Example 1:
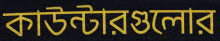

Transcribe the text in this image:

কাউন্টারগুলোর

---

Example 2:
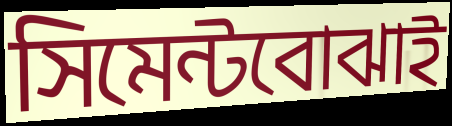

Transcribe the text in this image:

সিমেন্টবোঝাই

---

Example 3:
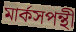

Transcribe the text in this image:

মার্কসপন্থী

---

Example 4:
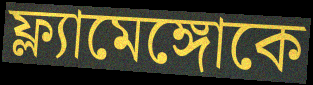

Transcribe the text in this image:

ফ্ল্যামেঙ্গোকে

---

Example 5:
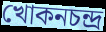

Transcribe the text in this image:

খোকনচন্দ্র